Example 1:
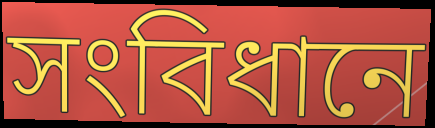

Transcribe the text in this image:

সংবিধানে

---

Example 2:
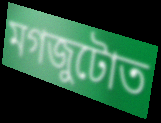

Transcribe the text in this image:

মগজুটোত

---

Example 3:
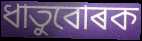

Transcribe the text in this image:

ধাতুবোৰক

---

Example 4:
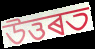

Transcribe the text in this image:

উত্তৰত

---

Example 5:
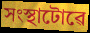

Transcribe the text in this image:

সংস্থাটোৱে